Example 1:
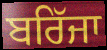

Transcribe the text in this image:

ਬਰਿੱਜਾ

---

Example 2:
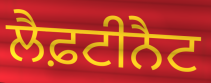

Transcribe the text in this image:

ਲੈਫ਼ਟੀਨੈਟ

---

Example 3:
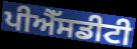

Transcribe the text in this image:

ਪੀਐੱਸਡੀਟੀ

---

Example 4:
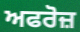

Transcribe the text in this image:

ਅਫਰੋਜ਼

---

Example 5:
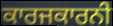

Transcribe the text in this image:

ਕਾਰਜਕਾਰਨੀ